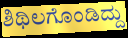
ಶಿಥಿಲಗೊಂಡಿದ್ದು